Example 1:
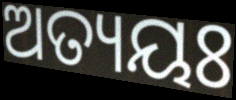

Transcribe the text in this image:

ଅତ୍ୟୟଃ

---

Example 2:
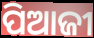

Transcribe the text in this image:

ପିଆଜୀ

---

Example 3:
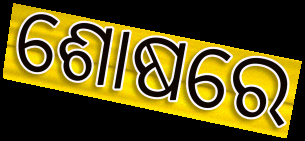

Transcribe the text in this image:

ଶୋଷରେ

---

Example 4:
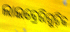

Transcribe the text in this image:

ଲାଇବ୍ରେରିଗୁଡ଼ିକ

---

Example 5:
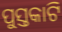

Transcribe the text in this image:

ପୁସ୍ତକାଟି